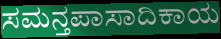
ಸಮನ್ತಪಾಸಾದಿಕಾಯ